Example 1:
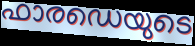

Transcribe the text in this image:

ഫാരഡെയുടെ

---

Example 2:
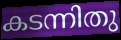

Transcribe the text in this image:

കടന്നിതു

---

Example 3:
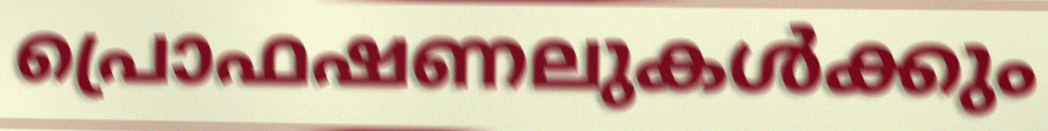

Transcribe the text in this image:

പ്രൊഫഷണലുകൾക്കും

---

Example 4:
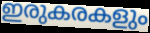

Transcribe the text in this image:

ഇരുകരകളും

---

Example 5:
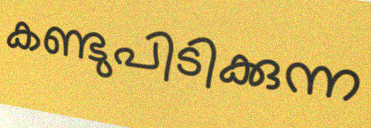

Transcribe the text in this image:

കണ്ടുപിടിക്കുന്ന